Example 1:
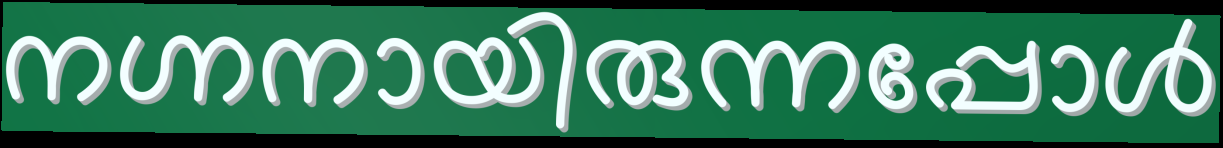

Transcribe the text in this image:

നഗ്നനായിരുന്നപ്പോൾ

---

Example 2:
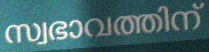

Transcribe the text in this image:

സ്വഭാവത്തിന്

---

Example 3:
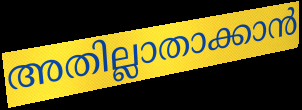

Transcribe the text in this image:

അതില്ലാതാക്കാൻ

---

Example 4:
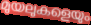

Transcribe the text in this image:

മുയലുകളെയും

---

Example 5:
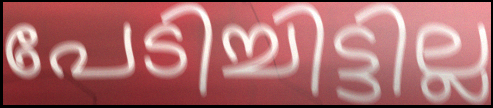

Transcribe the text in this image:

പേടിച്ചിട്ടില്ല